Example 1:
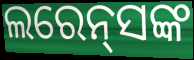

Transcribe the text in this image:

ଲରେନ୍‌ସଙ୍କ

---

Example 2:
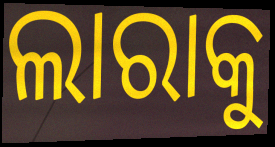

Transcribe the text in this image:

ଲାରାକୁ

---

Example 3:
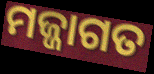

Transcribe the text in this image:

ମଜ୍ଜାଗତ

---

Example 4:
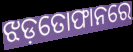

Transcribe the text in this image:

ଝଡ଼ତୋଫାନରେ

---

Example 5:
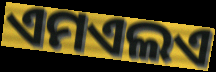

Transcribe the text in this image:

ଏମଏଲଏ